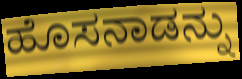
ಹೊಸನಾಡನ್ನು